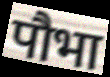
पौभा